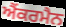
ਐਂਕਰਮੈਨ